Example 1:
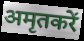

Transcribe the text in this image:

अमृतकरें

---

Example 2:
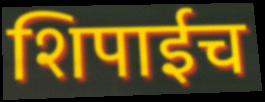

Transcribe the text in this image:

शिपाईच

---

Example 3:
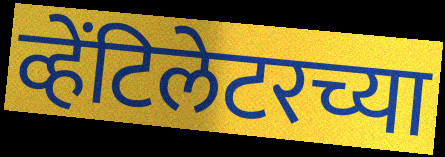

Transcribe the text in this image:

व्हेंटिलेटरच्या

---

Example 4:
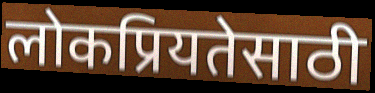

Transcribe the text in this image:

लोकप्रियतेसाठी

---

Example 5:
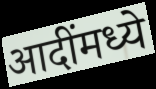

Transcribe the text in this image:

आदींमध्ये